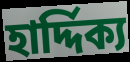
হার্দ্দিক্য